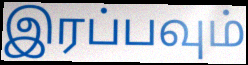
இரப்பவும்